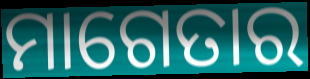
ମାଗେତାର